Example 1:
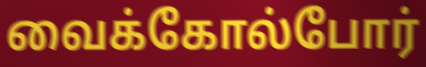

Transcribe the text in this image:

வைக்கோல்போர்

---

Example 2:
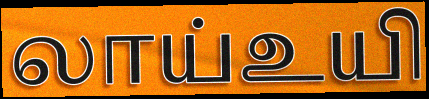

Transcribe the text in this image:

லாய்உயி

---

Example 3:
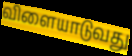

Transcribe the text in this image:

விளையாடுவது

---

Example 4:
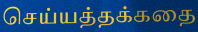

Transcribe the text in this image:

செய்யத்தக்கதை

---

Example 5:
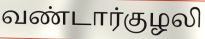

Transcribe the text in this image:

வண்டார்குழலி